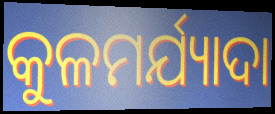
କୁଳମର୍ଯ୍ୟାଦା